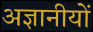
अज्ञानीयों